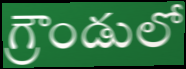
గ్రౌండులో